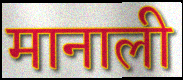
मानाली